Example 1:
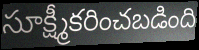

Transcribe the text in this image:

సూక్ష్మీకరించబడింది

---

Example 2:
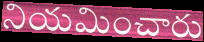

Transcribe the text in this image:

నియమించారు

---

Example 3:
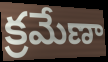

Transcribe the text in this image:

క్రమేణా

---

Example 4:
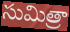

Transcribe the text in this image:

సుమిత్రా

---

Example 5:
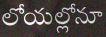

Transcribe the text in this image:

లోయల్లోనూ